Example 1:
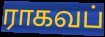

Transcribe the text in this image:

ராகவப்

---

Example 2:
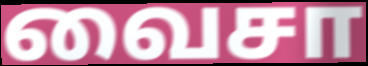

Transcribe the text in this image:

வைசா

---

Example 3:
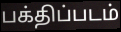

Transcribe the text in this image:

பக்திப்படம்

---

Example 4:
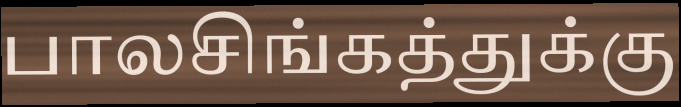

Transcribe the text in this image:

பாலசிங்கத்துக்கு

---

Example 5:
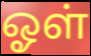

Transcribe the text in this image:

ஓள்